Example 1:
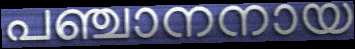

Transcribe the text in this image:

പഞ്ചാനനായ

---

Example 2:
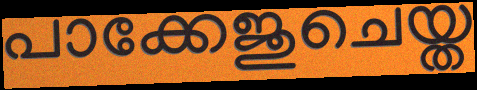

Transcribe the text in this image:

പാക്കേജുചെയ്ത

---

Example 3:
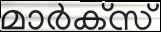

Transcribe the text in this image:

മാർക്‌സ്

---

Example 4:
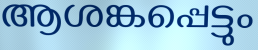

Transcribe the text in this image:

ആശങ്കപ്പെട്ടും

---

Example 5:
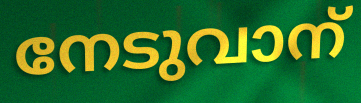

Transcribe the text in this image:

നേടുവാന്